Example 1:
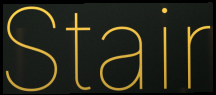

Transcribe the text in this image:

Stair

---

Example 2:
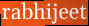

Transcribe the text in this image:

rabhijeet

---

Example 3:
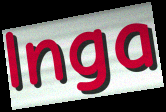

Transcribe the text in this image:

lnga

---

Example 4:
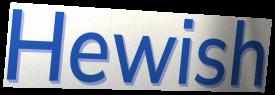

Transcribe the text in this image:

Hewish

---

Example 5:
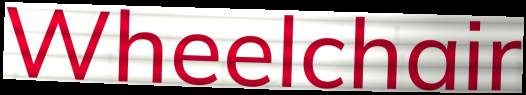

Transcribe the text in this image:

Wheelchair